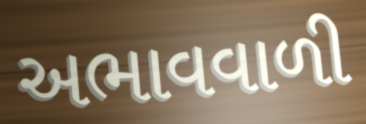
અભાવવાળી